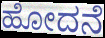
ಹೋದನೆ